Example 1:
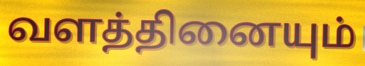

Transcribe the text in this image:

வளத்தினையும்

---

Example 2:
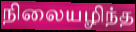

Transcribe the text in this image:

நிலையழிந்த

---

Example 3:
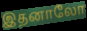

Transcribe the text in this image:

இதனாலோ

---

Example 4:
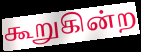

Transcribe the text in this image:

கூறுகின்ற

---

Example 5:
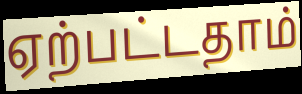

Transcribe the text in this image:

ஏற்பட்டதாம்